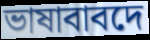
ভাষাবাবদে